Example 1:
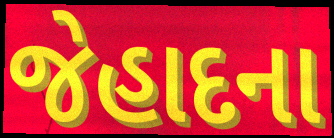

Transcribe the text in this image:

જેહાદના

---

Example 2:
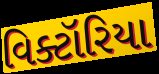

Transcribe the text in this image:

વિક્ટૉરિયા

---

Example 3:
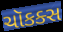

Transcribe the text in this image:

ચૉકક્સ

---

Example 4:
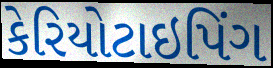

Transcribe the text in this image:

કેરિયોટાઇપિંગ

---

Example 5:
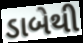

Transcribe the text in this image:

ડાબેથી